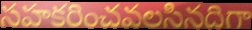
సహకరించవలసినదిగా